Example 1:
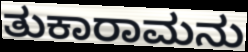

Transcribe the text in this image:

ತುಕಾರಾಮನು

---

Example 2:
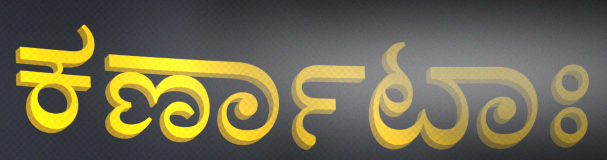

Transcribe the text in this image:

ಕರ್ಣಾಟಾಃ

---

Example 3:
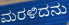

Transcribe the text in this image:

ಮರಳಿದನು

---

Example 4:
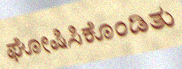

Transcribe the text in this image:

ಘೋಷಿಸಿಕೊಂಡಿತು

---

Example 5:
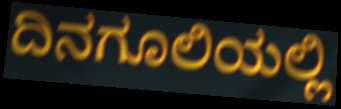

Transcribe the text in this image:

ದಿನಗೂಲಿಯಲ್ಲಿ